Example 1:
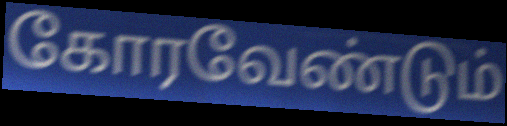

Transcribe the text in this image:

கோரவேண்டும்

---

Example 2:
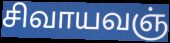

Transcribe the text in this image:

சிவாயவஞ்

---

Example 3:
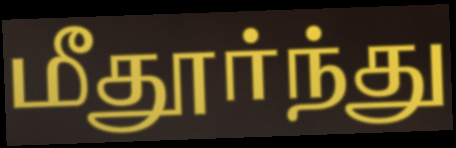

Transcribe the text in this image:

மீதூர்ந்து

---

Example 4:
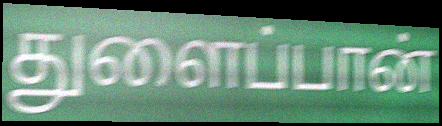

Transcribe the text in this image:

துளைப்பான்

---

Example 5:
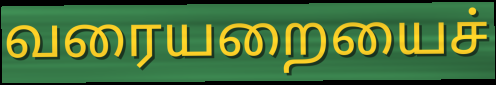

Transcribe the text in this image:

வரையறையைச்